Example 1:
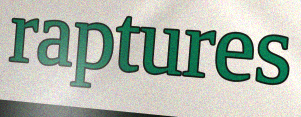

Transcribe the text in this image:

raptures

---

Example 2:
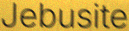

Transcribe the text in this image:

Jebusite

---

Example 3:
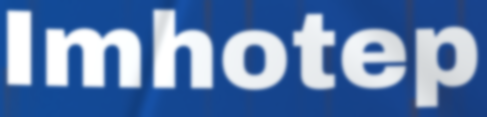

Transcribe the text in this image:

Imhotep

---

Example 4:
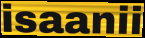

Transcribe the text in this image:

isaanii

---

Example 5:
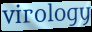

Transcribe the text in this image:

virology